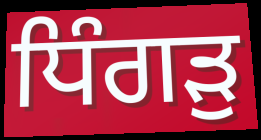
ਧਿੰਗੜੁ